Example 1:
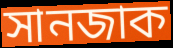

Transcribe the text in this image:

সানজাক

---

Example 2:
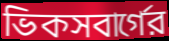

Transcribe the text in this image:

ভিকসবার্গের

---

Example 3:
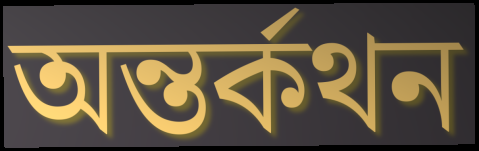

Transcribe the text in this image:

অন্তর্কথন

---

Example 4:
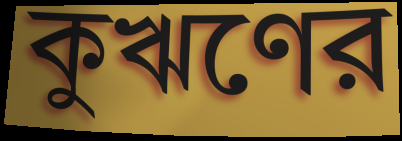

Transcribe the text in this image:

কুঋণের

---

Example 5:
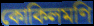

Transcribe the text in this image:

কোকিলমণি